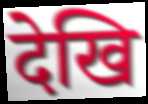
देखि